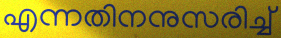
എന്നതിനനുസരിച്ച്